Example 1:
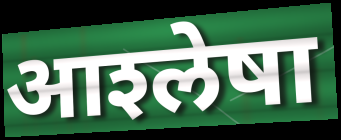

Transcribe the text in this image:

आश्‍लेषा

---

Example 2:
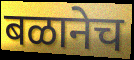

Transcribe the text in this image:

बळानेच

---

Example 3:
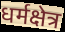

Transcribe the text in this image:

धर्मक्षेत्र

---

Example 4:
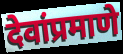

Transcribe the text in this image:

देवांप्रमाणे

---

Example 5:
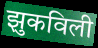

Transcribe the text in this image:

झुकविली